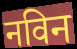
नविन